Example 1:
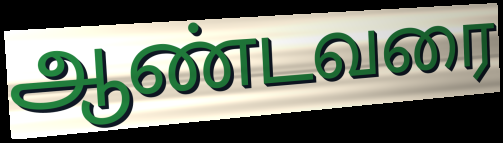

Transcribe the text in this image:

ஆண்டவரை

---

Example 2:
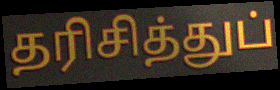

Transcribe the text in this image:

தரிசித்துப்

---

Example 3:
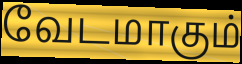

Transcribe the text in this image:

வேடமாகும்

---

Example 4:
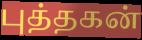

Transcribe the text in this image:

புத்தகன்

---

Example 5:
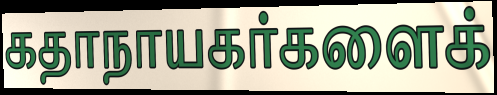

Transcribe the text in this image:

கதாநாயகர்களைக்